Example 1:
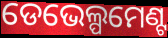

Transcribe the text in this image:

ଡେଭେଲ୍ପମେଣ୍ଟ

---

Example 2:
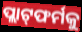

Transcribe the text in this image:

ପ୍ଲାଟ୍‌ଫର୍ମକୁ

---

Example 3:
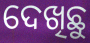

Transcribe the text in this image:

ଦେଖିଛୁ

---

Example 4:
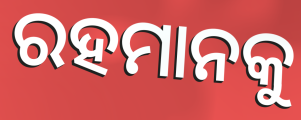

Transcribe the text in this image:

ରହମାନକୁ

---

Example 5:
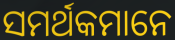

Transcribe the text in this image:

ସମର୍ଥକମାନେ